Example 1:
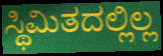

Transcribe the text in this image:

ಸ್ಥಿಮಿತದಲ್ಲಿಲ್ಲ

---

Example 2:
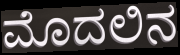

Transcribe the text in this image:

ಮೊದಲಿನ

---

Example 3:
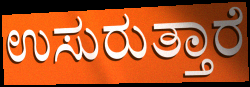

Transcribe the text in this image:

ಉಸುರುತ್ತಾರೆ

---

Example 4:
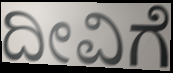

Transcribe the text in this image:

ದೀವಿಗೆ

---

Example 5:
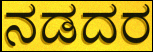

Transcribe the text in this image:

ನಡದರ